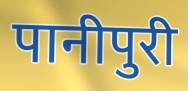
पानीपुरी